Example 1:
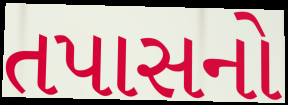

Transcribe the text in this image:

તપાસનો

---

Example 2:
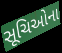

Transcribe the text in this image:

સૂચિઓના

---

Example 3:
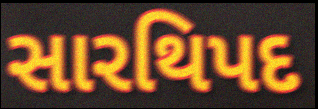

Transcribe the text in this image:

સારથિપદ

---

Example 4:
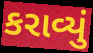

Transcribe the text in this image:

કરાવ્યું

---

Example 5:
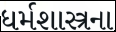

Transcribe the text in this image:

ધર્મશાસ્ત્રના